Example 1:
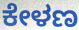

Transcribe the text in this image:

ಕೇಳಣ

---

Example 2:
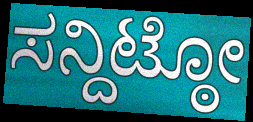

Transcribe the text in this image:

ಸನ್ದಿಟ್ಠೋ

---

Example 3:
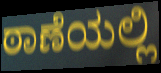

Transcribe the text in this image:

ಠಾಣೆಯಲ್ಲಿ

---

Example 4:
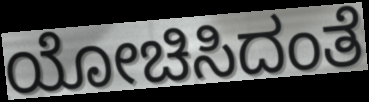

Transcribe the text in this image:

ಯೋಚಿಸಿದಂತೆ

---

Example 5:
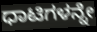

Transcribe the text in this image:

ಧಾಟಿಗಳನ್ನೇ